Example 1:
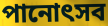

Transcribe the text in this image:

পানোৎসব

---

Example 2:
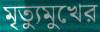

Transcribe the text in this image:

মৃত্যুমুখের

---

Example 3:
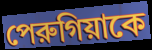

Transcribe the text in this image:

পেরুগিয়াকে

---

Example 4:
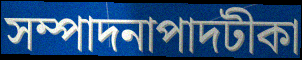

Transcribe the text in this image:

সম্পাদনাপাদটীকা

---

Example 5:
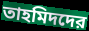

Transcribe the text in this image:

তাহমিদদের